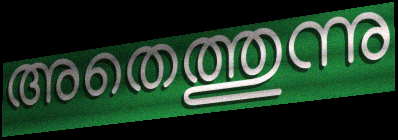
അതെത്തുന്നു